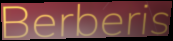
Berberis